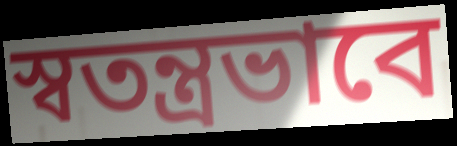
স্বতন্ত্রভাবে